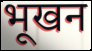
भूखन